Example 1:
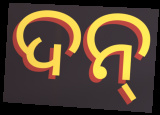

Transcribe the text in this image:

ଦନ୍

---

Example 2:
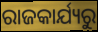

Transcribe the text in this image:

ରାଜକାର୍ଯ୍ୟରୁ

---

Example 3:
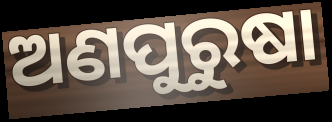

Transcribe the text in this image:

ଅଣପୁରୁଷା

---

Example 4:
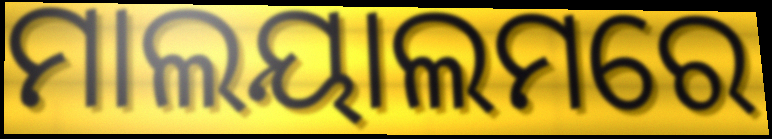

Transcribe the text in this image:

ମାଲୟାଲମରେ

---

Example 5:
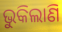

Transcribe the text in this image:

ଭୁକିଲାଣି